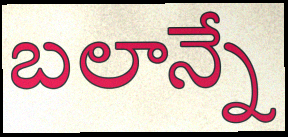
బలాన్నే